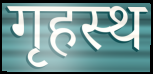
गृहस्थ